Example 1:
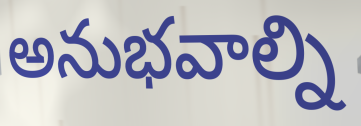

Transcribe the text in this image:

అనుభవాల్ని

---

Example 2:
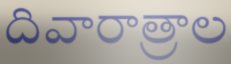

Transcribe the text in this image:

దివారాత్రాల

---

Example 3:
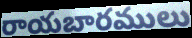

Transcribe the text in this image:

రాయబారములు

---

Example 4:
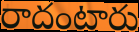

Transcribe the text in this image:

రాదంటారు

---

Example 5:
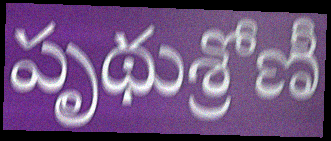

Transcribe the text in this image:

పృథుశ్రోణీ